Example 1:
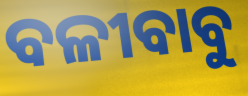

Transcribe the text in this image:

ବଳୀବାବୁ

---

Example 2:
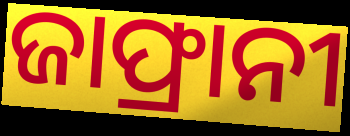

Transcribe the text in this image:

ଜାଫ୍ରାନୀ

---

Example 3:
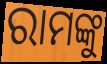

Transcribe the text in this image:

ରାମଙ୍କୁ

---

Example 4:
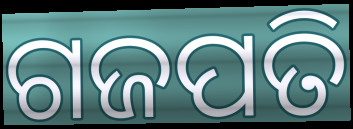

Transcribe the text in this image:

ଗଜପତି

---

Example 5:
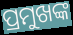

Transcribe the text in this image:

ପ୍ରମୁଖଙ୍କ